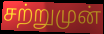
சற்றுமுன்